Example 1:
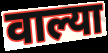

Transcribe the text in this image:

वाल्या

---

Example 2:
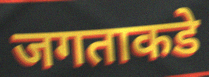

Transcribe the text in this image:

जगताकडे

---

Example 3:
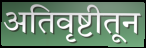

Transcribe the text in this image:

अतिवृष्टीतून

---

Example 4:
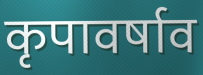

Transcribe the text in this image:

कृपावर्षाव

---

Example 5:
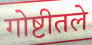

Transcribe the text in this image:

गोष्टीतले